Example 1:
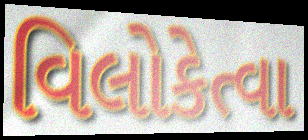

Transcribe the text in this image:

વિલોકેત્વા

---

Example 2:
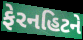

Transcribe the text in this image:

ફેરનહિટને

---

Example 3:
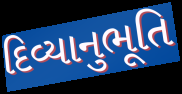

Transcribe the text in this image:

દિવ્યાનુભૂતિ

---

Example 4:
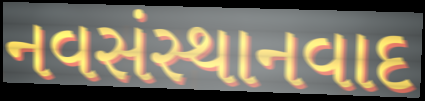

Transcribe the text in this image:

નવસંસ્થાનવાદ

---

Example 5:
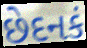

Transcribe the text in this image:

છેદનકં